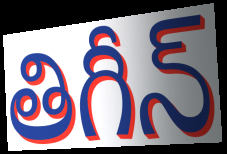
తిగీన్